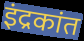
इंद्रकांत